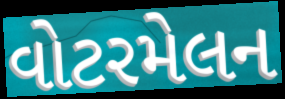
વોટરમેલન